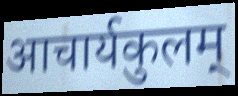
आचार्यकुलम्